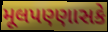
મૂલપણ્ણાસકે